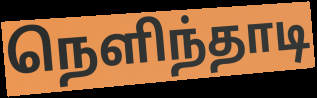
நெளிந்தாடி